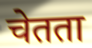
चेतता